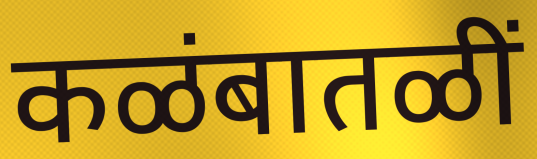
कळंबातळीं